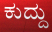
ಕುದ್ದು